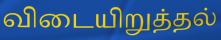
விடையிறுத்தல்